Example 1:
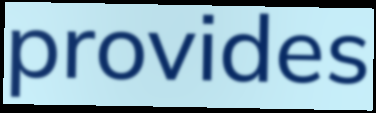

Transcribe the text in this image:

provides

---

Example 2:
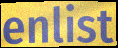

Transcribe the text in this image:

enlist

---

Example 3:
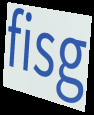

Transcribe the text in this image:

fisg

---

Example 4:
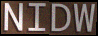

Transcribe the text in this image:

NIDW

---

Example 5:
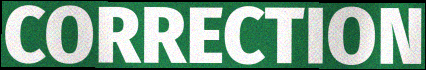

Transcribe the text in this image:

CORRECTION